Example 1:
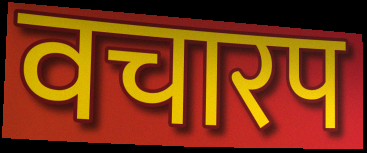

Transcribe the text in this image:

वचारप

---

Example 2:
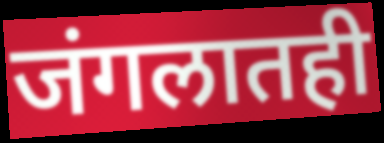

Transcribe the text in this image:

जंगलातही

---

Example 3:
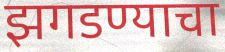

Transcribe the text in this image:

झगडण्याचा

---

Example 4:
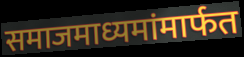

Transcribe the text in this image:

समाजमाध्यमांमार्फत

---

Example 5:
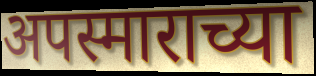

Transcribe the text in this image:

अपस्माराच्या